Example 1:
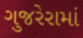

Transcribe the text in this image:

ગુજરેરામાં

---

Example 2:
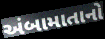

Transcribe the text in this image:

અંબામાતાનો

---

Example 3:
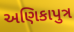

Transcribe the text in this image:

અણિકાપુત્ર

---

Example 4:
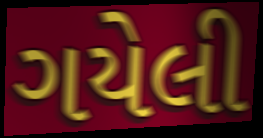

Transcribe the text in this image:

ગયેલી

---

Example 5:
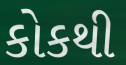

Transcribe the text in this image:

કોકથી